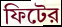
ফিটের